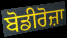
ਬੋਡੀਰੋਜ਼ਾ